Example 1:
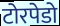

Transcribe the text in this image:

टोरपेडो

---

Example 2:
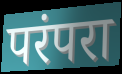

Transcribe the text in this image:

परंपरा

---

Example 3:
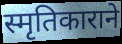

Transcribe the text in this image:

स्मृतिकाराने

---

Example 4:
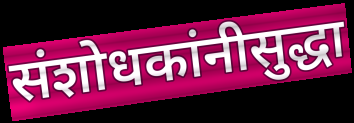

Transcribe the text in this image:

संशोधकांनीसुद्धा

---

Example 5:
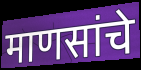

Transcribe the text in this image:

माणसांचे